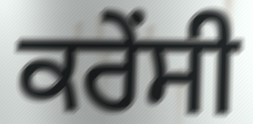
ਕਰੇੰਸੀ